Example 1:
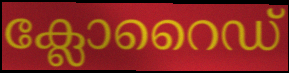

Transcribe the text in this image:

ക്ലോറൈഡ്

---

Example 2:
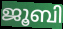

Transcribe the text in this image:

ജൂബി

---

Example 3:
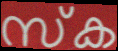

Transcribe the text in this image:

സ്ക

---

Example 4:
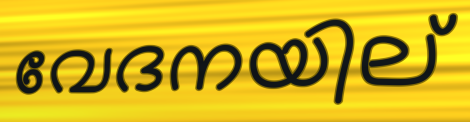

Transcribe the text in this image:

വേദനയില്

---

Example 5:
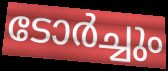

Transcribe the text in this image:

ടോർച്ചും